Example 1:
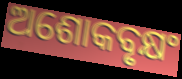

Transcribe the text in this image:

ଅଶୋକବୃକ୍ଷଂ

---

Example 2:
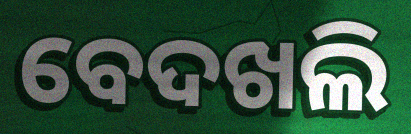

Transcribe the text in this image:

ବେଦଖଲି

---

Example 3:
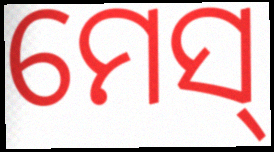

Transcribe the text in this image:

ମେସ୍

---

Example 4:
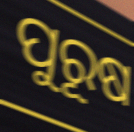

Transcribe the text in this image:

ପୁରୂଷ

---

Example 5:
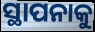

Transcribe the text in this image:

ସ୍ଥାପନାକୁ